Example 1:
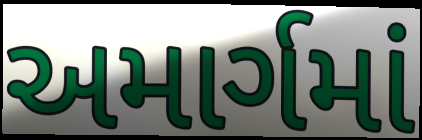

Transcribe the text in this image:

અમાર્ગમાં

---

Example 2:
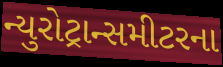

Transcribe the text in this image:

ન્યુરોટ્રાન્સમીટરના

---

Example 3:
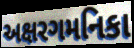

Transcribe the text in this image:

અક્ષરગમનિકા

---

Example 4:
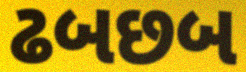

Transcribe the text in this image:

ઢબછબ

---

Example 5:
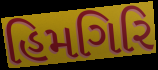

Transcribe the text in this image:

હિમગિરિ